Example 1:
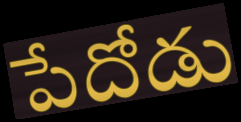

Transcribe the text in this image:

పేదోడు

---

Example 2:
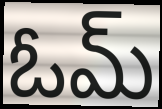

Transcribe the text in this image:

ఓమ్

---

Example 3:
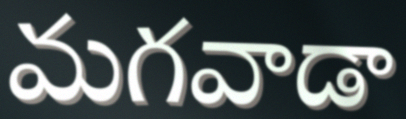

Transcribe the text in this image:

మగవాడా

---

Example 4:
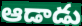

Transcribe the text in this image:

ఆడాడు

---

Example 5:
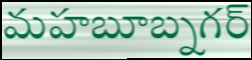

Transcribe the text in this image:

మహబూబ్నగర్